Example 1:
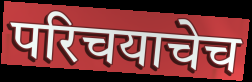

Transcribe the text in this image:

परिचयाचेच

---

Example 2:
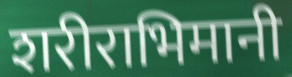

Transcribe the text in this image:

शरीराभिमानी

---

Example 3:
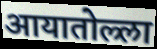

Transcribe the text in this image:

आयातोल्ला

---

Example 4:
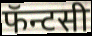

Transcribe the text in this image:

फॅन्टसी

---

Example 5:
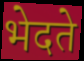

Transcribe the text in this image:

भेदते